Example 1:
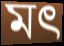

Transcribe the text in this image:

মৎ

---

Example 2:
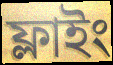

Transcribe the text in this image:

ফ্লাইং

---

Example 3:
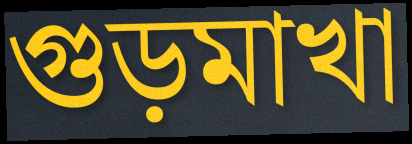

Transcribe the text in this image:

গুড়মাখা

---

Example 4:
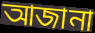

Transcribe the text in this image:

আজানা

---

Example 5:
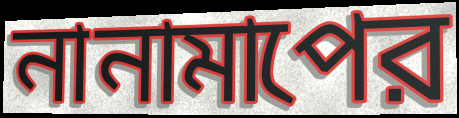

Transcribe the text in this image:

নানামাপের